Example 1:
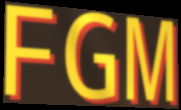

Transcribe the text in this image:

FGM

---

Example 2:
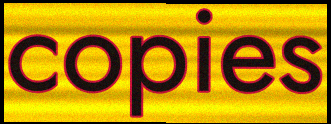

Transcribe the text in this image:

copies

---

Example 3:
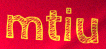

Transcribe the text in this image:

mtiu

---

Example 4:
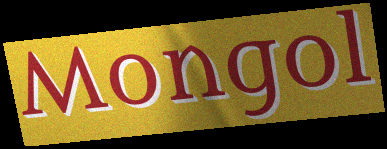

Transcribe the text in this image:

Mongol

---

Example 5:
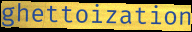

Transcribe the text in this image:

ghettoization